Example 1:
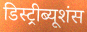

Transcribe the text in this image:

डिस्ट्रीब्यूशंस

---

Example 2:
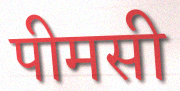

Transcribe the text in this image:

पीमसी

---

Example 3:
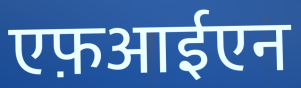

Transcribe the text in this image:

एफ़आईएन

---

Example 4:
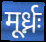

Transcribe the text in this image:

मूर्ध्नः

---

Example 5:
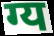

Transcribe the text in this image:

ग्य